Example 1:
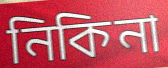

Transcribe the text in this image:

নিকিনা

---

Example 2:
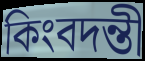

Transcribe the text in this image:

কিংবদন্তী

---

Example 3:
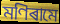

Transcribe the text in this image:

মণিৰামে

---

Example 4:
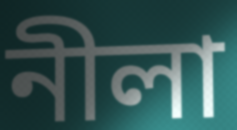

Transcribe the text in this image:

নীলা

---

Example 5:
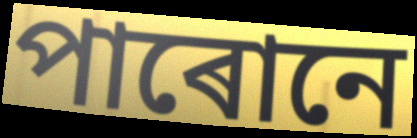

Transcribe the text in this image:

পাৰোনে